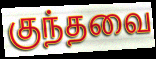
குந்தவை